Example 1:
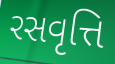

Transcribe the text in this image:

રસવૃત્તિ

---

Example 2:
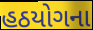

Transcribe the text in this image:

હઠયોગના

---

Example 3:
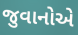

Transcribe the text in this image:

જુવાનોએ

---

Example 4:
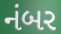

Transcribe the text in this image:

નંબર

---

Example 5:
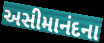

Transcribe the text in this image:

અસીમાનંદના